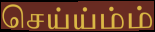
செய்ய்ம்ம்